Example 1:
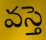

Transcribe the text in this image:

వస్తె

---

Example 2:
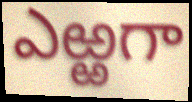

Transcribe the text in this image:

ఎఱ్ఱగా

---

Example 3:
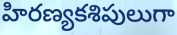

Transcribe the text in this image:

హిరణ్యకశిపులుగా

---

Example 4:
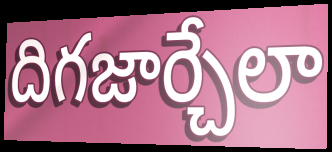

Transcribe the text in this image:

దిగజార్చేలా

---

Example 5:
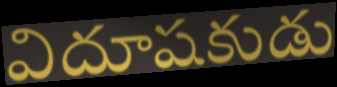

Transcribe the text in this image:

విదూషకుడు